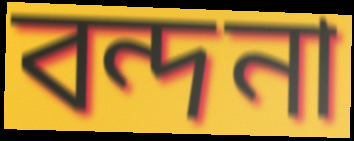
বন্দনা